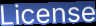
License